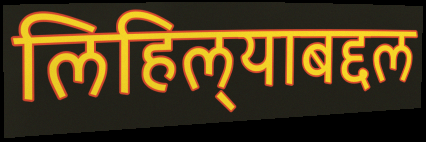
लिहिल्याबद्दल